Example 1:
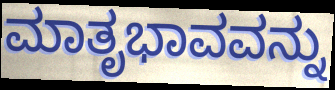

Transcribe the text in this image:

ಮಾತೃಭಾವವನ್ನು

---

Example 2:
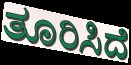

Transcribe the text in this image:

ತೂರಿಸಿದೆ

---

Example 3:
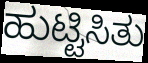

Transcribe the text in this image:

ಹುಟ್ಟಿಸಿತು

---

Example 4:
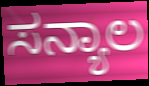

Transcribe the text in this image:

ಸನ್ಯಾಲ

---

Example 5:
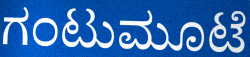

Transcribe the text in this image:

ಗಂಟುಮೂಟೆ